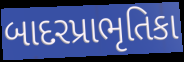
બાદરપ્રાભૃતિકા